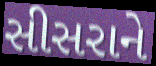
સીસરાને